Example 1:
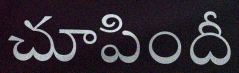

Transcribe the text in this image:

చూపిందీ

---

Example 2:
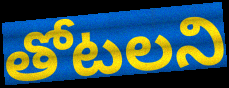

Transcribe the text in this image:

తోటలని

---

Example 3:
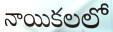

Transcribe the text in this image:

నాయికలలో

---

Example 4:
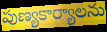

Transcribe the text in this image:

పుణ్యకార్యాలను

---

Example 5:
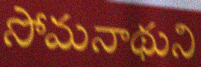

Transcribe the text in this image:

సోమనాథుని